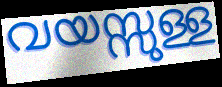
വയസ്സുള്ള